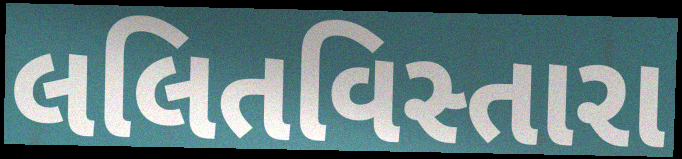
લલિતવિસ્તારા